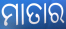
ମାତାର